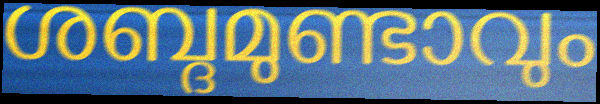
ശബ്ദമുണ്ടാവും